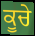
ਕੂਚੇ